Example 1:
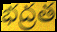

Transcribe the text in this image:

భద్రత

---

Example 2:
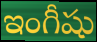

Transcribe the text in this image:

ఇంగీషు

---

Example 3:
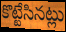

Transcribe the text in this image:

కొట్టేసినట్లు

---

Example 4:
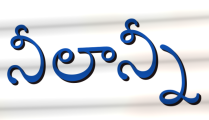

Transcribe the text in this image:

నీలాన్నీ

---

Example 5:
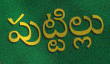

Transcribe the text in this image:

పుట్టిల్లు